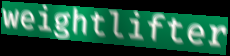
weightlifter